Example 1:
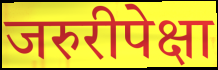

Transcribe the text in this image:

जरुरीपेक्षा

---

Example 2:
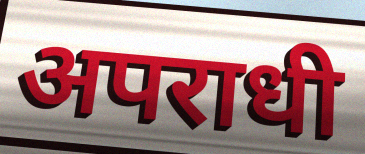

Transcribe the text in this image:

अपराधी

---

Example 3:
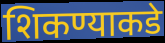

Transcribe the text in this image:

शिकण्याकडे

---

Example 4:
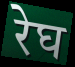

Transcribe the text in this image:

रेघ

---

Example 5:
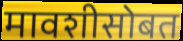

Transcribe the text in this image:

मावशीसोबत